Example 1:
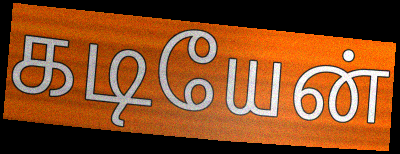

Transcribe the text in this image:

கடியேன்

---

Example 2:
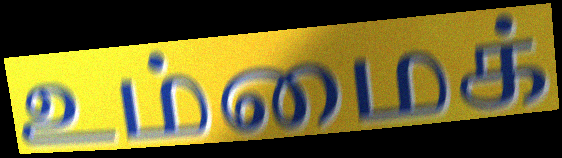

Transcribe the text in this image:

உம்மைக்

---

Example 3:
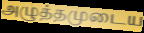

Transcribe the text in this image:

அழுத்தமுடைய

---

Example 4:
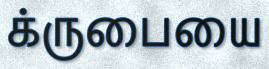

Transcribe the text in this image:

க்ருபையை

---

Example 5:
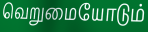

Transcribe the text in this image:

வெறுமையோடும்